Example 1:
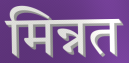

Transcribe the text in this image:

मिन्नत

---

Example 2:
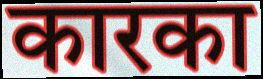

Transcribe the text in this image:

कारका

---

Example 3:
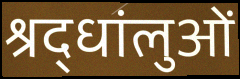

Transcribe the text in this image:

श्रद्धांलुओं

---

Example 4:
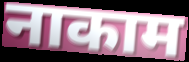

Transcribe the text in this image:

नाकाम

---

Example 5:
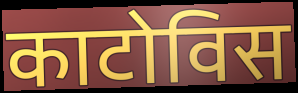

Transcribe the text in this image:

काटोविस